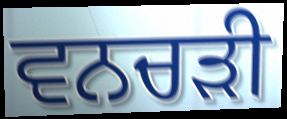
ਵਨਚੜੀ